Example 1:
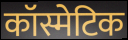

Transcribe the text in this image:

कॉस्मेटिक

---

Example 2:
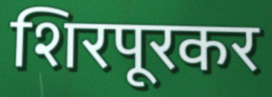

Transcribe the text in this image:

शिरपूरकर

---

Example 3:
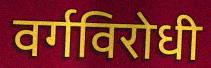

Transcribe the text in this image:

वर्गविरोधी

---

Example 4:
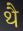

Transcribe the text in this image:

थै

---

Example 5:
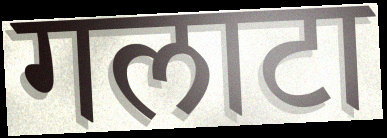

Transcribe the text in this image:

गलाटा